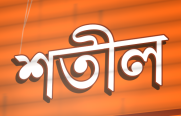
শতীল